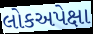
લોકઅપેક્ષા